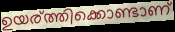
ഉയര്ത്തിക്കൊണ്ടാണ്